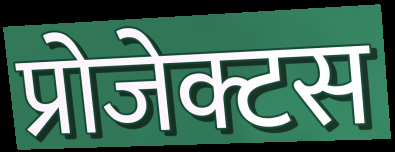
प्रोजेक्टस